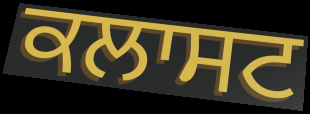
ਕਲਾਸਟ